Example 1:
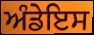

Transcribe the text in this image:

ਅੰਡੇਇਸ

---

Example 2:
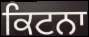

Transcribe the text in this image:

ਕਿਟਨਾ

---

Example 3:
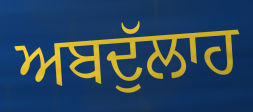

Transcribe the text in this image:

ਅਬਦੁੱਲਾਹ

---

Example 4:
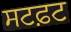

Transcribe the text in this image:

ਸਟਫ਼ਟ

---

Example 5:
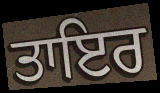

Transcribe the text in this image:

ਤਾਇਰ